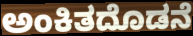
ಅಂಕಿತದೊಡನೆ